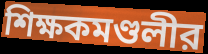
শিক্ষকমণ্ডলীর